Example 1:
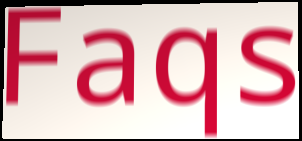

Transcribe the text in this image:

Faqs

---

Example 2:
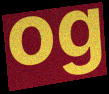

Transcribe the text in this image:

og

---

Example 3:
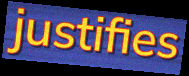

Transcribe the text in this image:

justifies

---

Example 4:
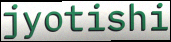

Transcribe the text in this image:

jyotishi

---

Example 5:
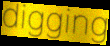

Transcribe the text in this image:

digging